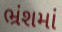
ભ્રંશમાં